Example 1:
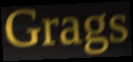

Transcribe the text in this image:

Grags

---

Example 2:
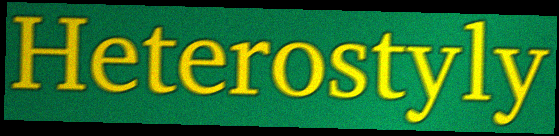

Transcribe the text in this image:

Heterostyly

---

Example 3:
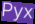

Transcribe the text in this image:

Pyx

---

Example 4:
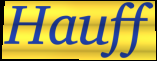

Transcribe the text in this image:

Hauff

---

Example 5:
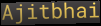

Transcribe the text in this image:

Ajitbhai